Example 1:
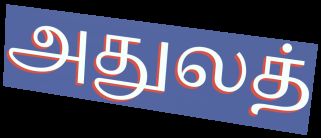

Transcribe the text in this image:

அதுலத்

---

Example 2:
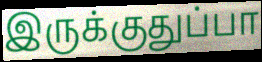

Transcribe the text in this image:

இருக்குதுப்பா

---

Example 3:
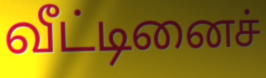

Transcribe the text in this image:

வீட்டினைச்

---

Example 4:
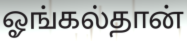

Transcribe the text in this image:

ஓங்கல்தான்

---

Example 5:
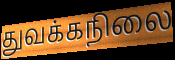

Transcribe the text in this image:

துவக்கநிலை